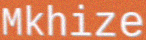
Mkhize